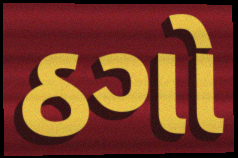
ઠગો